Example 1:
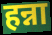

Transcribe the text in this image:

हन्ना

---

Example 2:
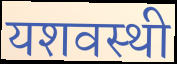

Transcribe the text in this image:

यशवस्थी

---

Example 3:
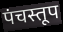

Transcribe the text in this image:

पंचस्तूप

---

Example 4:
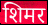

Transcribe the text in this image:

शिमर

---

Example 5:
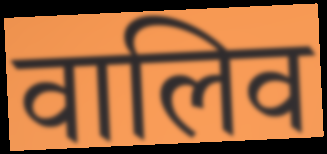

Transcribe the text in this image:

वालिव